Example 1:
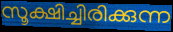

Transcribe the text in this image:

സൂക്ഷിച്ചിരിക്കുന്ന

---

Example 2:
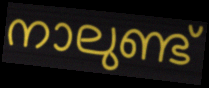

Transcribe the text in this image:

നാലുണ്ട്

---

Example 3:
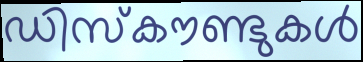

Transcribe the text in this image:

ഡിസ്കൗണ്ടുകൾ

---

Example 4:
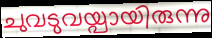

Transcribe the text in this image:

ചുവടുവയ്പായിരുന്നു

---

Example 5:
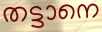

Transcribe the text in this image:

തട്ടാനെ